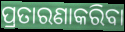
ପ୍ରତାରଣାକରିବା